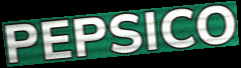
PEPSICO